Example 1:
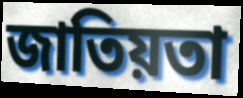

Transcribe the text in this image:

জাতিয়তা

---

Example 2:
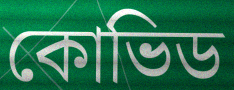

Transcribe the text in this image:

কোভিড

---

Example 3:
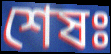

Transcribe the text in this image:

শেষঃ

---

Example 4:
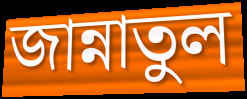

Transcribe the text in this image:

জান্নাতুল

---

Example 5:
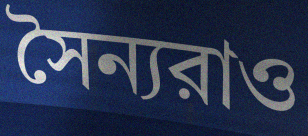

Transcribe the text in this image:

সৈন্যরাও